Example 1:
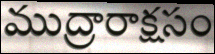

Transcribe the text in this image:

ముద్రారాక్షసం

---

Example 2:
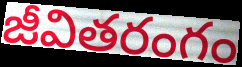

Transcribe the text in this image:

జీవితరంగం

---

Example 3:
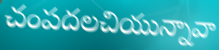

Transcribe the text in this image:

చంపదలచియున్నావా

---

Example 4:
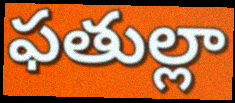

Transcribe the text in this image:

ఫతుల్లా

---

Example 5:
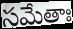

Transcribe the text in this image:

సమేతాః